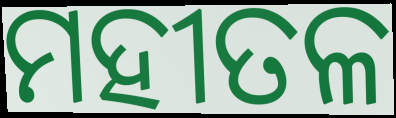
ମହୀତଳ